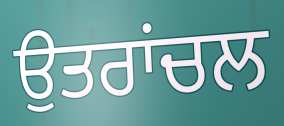
ਉਤਰਾਂਚਲ